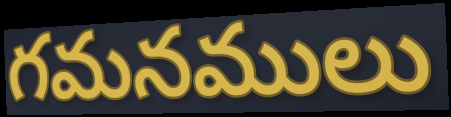
గమనములు